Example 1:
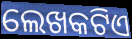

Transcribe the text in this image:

ଲେଖକଟିଏ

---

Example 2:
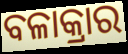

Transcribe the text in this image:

ବଳାକ୍ରାର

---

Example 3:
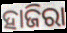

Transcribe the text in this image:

ହାଜିରା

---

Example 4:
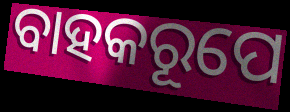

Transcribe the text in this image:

ବାହକରୂପେ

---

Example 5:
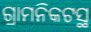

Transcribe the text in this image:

ଗ୍ରାମନିକଟସ୍ଥ